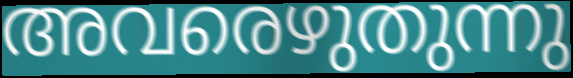
അവരെഴുതുന്നു